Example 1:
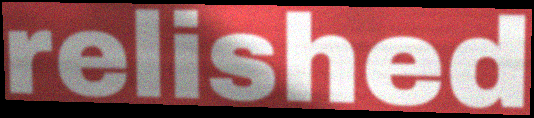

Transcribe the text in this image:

relished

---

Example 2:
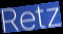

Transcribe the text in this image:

Retz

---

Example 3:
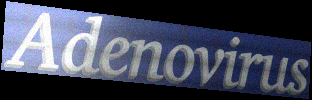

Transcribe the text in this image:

Adenovirus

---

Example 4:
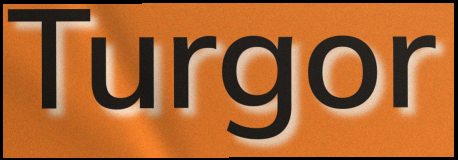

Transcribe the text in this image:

Turgor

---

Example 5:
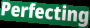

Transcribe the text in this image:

Perfecting